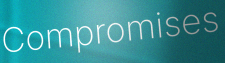
Compromises